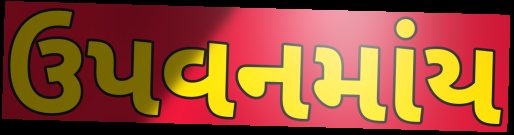
ઉપવનમાંય